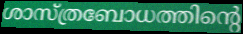
ശാസ്ത്രബോധത്തിന്റെ